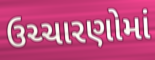
ઉચ્ચારણોમાં